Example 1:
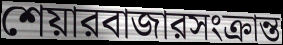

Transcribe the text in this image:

শেয়ারবাজারসংক্রান্ত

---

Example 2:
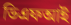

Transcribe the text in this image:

ডিএফআই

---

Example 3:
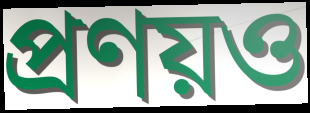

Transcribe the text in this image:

প্রণয়ও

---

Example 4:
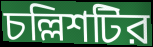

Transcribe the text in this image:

চল্লিশটির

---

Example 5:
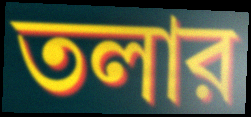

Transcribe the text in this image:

তলার